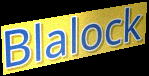
Blalock